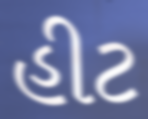
હીટ